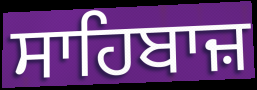
ਸਾਹਿਬਾਜ਼